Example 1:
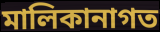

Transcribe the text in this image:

মালিকানাগত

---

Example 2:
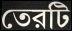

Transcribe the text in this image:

তেরটি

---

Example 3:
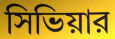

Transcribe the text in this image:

সিভিয়ার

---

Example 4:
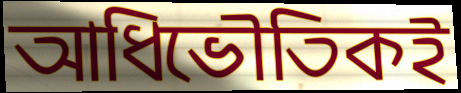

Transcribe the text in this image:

আধিভৌতিকই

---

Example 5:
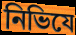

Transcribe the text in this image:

নিভিযে